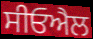
ਸੀਓਐਲ